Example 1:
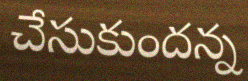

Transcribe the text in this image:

చేసుకుందన్న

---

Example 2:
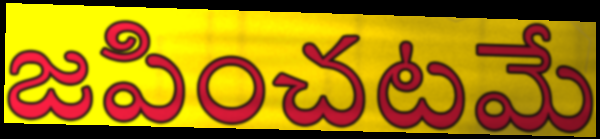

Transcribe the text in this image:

జపించటమే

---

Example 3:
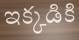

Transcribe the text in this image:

ఇక్కడికి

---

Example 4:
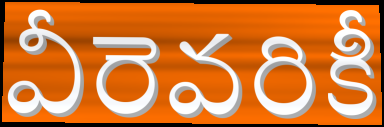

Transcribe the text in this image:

వీరెవరికీ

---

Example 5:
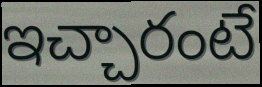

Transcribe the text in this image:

ఇచ్చారంటే